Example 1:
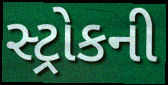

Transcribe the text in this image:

સ્ટ્રોકની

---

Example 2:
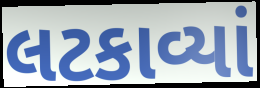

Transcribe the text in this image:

લટકાવ્યાં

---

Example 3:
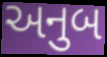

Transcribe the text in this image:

અનુબ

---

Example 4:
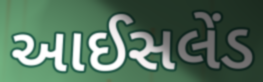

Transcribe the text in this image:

આઈસલેંડ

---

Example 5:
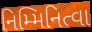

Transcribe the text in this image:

નિમ્મિનિત્વા